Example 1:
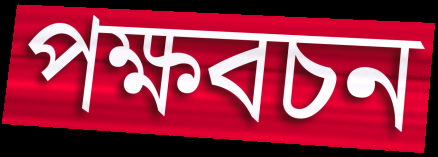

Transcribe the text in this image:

পক্ষবচন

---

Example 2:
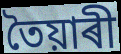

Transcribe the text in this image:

তৈয়াৰী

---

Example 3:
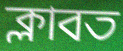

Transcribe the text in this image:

ক্লাবত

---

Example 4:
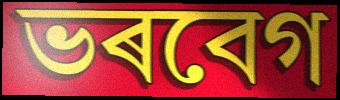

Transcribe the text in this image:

ভৰবেগ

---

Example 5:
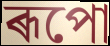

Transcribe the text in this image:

ৰূপো